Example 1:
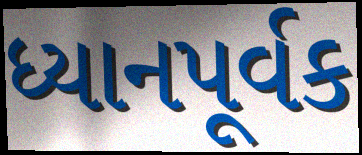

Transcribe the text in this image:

ધ્યાનપૂર્વક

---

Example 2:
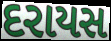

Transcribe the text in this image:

દરાયસ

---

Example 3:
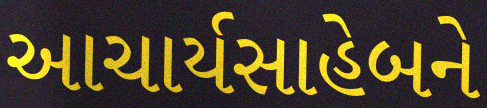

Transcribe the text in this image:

આચાર્યસાહેબને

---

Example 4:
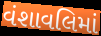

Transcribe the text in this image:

વંશાવલિમાં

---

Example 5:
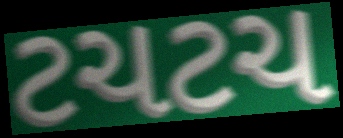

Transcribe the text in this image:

ટચટચ